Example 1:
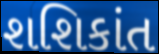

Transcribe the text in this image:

શશિકાંત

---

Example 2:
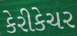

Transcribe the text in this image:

કેરીકેચર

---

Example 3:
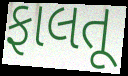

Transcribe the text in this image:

ફાલતૂ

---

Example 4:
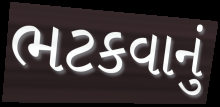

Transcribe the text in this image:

ભટકવાનું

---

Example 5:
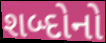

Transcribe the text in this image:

શબ્દોનો